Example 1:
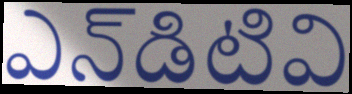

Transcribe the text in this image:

ఎన్‌డిటివి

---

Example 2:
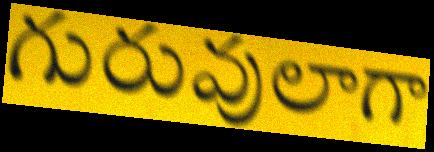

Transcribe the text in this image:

గురువులాగా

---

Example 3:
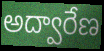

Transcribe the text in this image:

అద్వారేణ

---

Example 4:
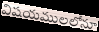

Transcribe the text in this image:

విషయములలోనూ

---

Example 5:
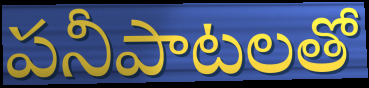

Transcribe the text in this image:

పనీపాటలతో